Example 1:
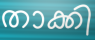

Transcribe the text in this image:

താക്കി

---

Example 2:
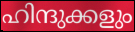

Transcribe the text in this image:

ഹിന്ദുക്കളും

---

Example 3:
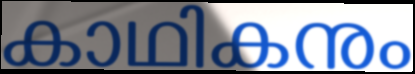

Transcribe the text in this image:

കാഥികനും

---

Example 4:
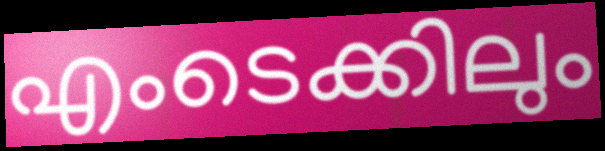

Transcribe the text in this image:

എംടെക്കിലും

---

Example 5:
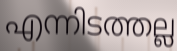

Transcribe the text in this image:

എന്നിടത്തല്ല